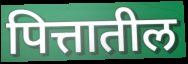
पित्तातील